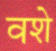
वशे